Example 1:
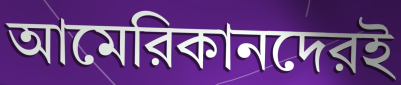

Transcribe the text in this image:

আমেরিকানদেরই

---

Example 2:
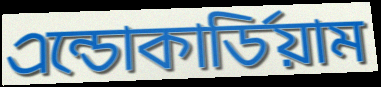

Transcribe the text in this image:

এন্ডোকার্ডিয়াম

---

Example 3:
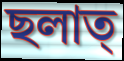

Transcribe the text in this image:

ছলাত্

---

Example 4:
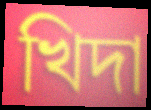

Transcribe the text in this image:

খিদা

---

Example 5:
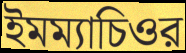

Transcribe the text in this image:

ইমম্যাচিওর